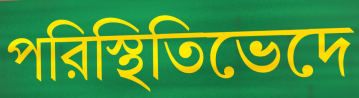
পরিস্থিতিভেদে